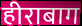
हीराबाग